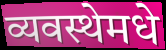
व्यवस्थेमधे